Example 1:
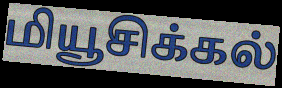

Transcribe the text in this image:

மியூசிக்கல்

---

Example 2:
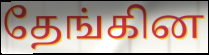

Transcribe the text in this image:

தேங்கின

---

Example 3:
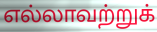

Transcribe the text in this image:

எல்லாவற்றுக்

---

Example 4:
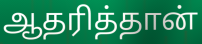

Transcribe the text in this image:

ஆதரித்தான்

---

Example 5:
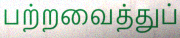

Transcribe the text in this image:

பற்றவைத்துப்